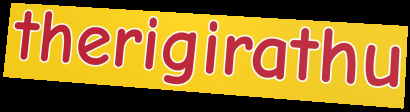
therigirathu